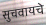
सुचवायचे